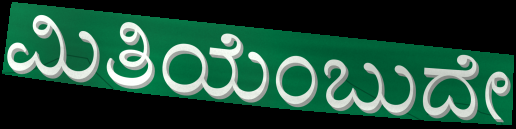
ಮಿತಿಯೆಂಬುದೇ